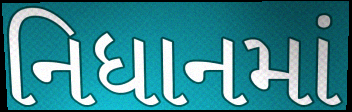
નિધાનમાં